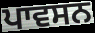
ਪਾਵਸਨ